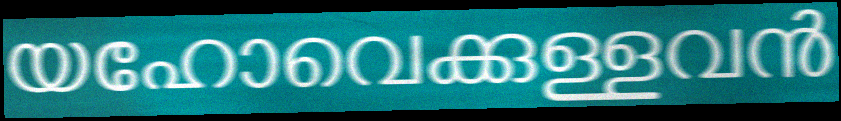
യഹോവെക്കുള്ളവൻ